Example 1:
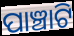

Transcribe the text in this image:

ପାଞ୍ଚାଟି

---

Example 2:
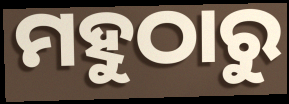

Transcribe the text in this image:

ମହୁଠାରୁ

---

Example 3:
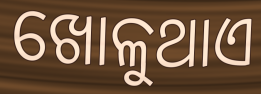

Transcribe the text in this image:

ଖୋଳୁଥାଏ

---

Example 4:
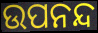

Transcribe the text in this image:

ଉପନନ୍ଦ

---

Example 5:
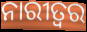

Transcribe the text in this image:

ନାରୀତ୍ୱର